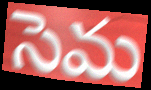
సెమ